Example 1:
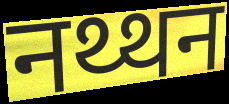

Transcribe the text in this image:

नथ्थन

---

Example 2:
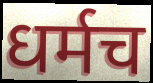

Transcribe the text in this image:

धर्मच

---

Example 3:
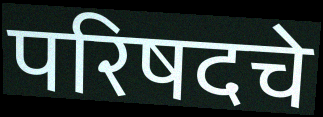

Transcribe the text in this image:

परिषदचे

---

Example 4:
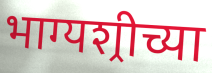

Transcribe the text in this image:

भाग्यश्रीच्या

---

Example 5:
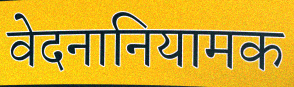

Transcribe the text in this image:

वेदनानियामक